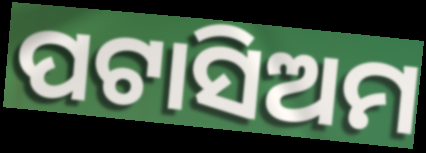
ପଟାସିଅମ